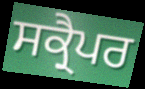
ਸਕ੍ਰੈਪਰ